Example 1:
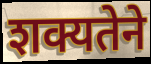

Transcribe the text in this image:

शक्यतेने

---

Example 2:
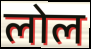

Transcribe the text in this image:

लोल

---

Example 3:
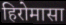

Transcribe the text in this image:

हिरोमासा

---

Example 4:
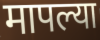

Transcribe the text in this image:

मापल्या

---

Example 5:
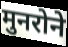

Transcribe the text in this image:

मुनरोने